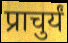
प्राचुर्यं